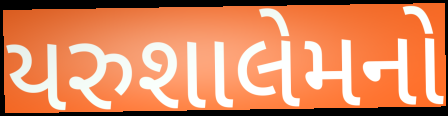
યરુશાલેમનો